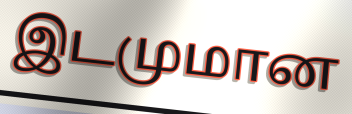
இடமுமான